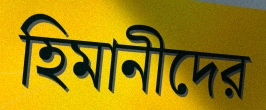
হিমানীদের